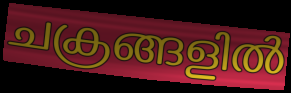
ചക്രങ്ങളിൽ